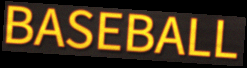
BASEBALL